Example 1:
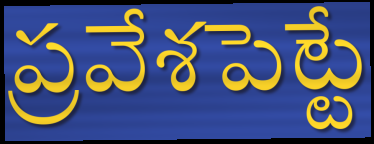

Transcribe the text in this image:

ప్రవేశపెట్టే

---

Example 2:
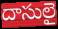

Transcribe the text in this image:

దాసులై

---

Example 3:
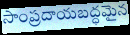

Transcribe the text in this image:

సాంప్రదాయబద్ధమైన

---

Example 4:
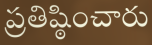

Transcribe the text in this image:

ప్రతిష్ఠించారు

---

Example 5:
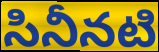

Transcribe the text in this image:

సినీనటి